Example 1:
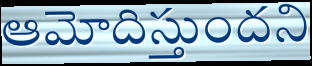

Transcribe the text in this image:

ఆమోదిస్తుందని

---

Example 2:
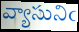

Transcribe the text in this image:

వ్యాసునిఁ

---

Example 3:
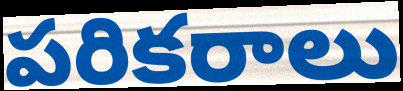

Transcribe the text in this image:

పరికరాలు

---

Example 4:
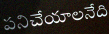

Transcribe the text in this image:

పనిచేయాలనేది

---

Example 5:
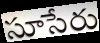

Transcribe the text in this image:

సూసేరు